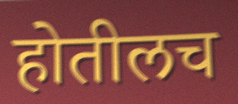
होतीलच